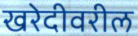
खरेदीवरील